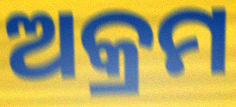
ଅକ୍ରମ